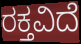
ರಕ್ತವಿದೆ